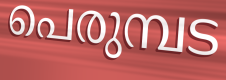
പെരുമ്പട